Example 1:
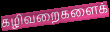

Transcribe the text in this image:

கழிவறைகளைக்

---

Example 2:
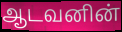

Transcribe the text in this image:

ஆடவனின்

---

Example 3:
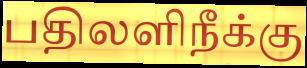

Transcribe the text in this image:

பதிலளிநீக்கு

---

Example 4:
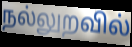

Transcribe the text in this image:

நல்லுறவில்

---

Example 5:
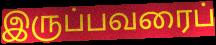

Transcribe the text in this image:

இருப்பவரைப்